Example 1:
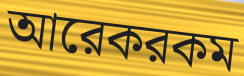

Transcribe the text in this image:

আরেকরকম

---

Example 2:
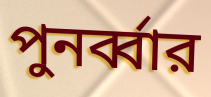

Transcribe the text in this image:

পুনর্ব্বার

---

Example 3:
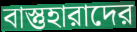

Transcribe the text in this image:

বাস্তুহারাদের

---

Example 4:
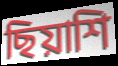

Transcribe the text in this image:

ছিয়াশি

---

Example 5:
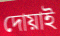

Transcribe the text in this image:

দোয়াই